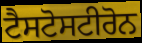
ਟੈਸਟੋਸਟੀਰੋਨ